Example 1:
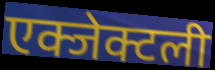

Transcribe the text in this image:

एक्जेक्टली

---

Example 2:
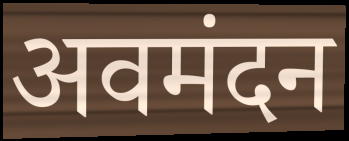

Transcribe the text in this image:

अवमंदन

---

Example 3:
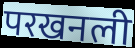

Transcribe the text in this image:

परखनली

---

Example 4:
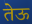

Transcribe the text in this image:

तेऊ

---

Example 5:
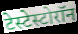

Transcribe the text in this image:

टेस्टेस्टोरॉन